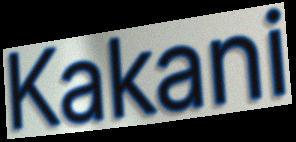
Kakani